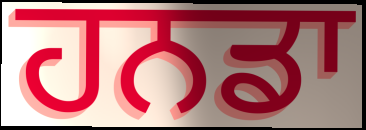
ਹਨਡਾ